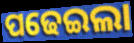
ପଢେଇଲା